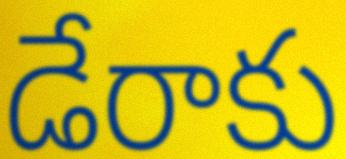
డేరాకు